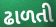
ઢાળતી